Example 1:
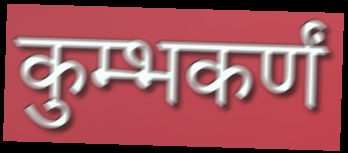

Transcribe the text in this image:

कुम्भकर्णं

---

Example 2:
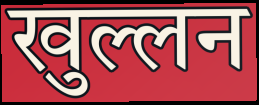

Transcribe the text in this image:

खुल्लन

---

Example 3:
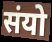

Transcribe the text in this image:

संयो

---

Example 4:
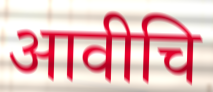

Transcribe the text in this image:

आवीचि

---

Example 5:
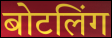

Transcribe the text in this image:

बोटलिंग